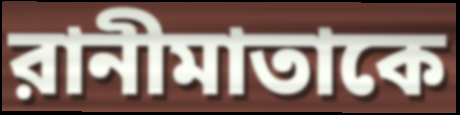
রানীমাতাকে